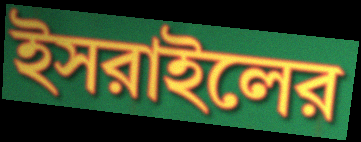
ইসরাইলের